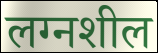
लग्नशील